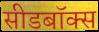
सीडबॉक्स